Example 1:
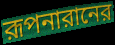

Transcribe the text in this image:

রূপনারানের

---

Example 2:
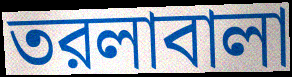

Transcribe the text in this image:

তরলাবালা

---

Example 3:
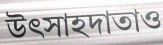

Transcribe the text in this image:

উৎসাহদাতাও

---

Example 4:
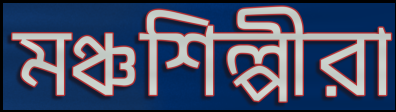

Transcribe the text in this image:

মঞ্চশিল্পীরা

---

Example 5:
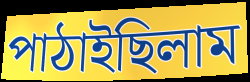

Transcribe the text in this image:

পাঠাইছিলাম